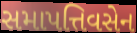
સમાપત્તિવસેન